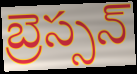
బ్రెస్సన్